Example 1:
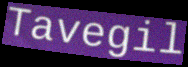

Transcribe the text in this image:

Tavegil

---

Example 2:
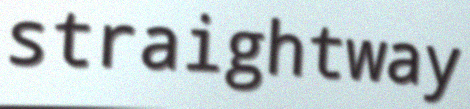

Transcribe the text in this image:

straightway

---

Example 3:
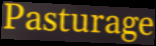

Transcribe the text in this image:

Pasturage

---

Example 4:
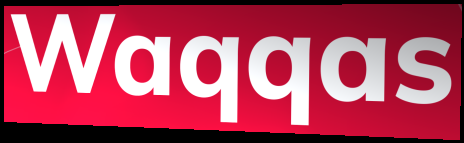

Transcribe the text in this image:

Waqqas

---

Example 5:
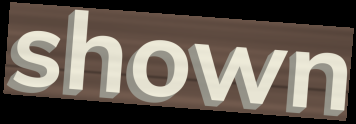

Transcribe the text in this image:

shown